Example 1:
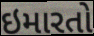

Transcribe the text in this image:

ઇમારતો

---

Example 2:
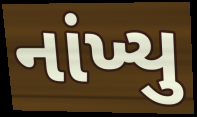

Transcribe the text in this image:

નાંખ્યુ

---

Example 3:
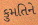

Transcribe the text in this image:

કુમતિને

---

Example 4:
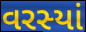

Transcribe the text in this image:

વરસ્યાં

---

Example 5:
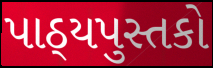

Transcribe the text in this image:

પાઠ્યપુસ્તકો